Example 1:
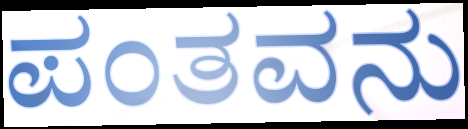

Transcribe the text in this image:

ಪಂತವನು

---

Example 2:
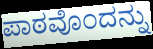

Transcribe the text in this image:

ಪಾಠವೊಂದನ್ನು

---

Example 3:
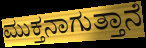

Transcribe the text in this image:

ಮುಕ್ತನಾಗುತ್ತಾನೆ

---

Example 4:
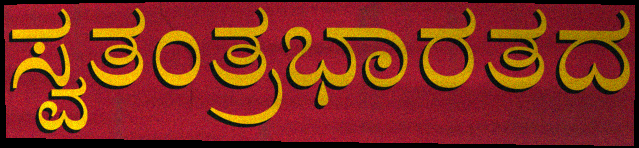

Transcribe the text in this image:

ಸ್ವತಂತ್ರಭಾರತದ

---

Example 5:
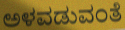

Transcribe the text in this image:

ಅಳವಡುವಂತೆ